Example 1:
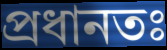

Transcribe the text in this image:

প্ৰধানতঃ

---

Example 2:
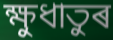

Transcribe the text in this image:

ক্ষুধাতুৰ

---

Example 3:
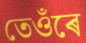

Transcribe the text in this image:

তেওঁৰে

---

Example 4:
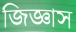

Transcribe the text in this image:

জিজ্ঞাস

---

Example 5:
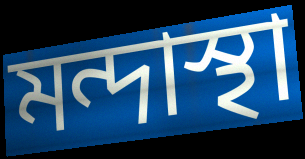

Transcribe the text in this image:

মন্দাস্থা